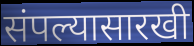
संपल्यासारखी